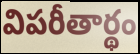
విపరీతార్థం